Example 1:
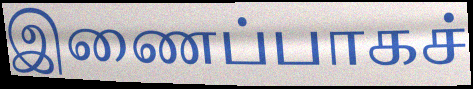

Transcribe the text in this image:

இணைப்பாகச்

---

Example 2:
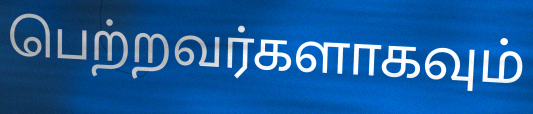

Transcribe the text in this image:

பெற்றவர்களாகவும்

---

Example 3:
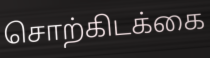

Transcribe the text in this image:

சொற்கிடக்கை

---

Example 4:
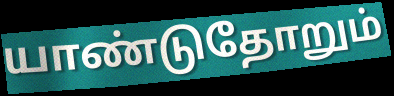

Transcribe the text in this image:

யாண்டுதோறும்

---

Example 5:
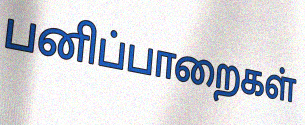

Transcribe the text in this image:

பனிப்பாறைகள்